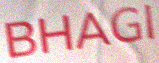
BHAGI